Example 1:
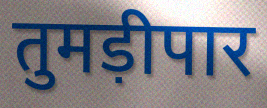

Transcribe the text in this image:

तुमड़ीपार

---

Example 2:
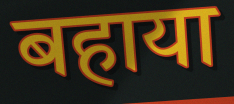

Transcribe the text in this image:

बहाया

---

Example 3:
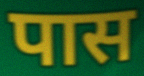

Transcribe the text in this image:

पास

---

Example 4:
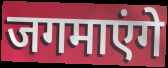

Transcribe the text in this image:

जगमाएंगे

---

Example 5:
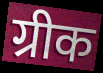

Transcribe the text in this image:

ग्रीक